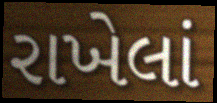
રાખેલાં